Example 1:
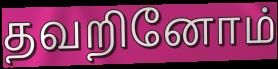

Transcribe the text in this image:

தவறினோம்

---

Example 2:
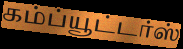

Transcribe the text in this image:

கம்ப்யூட்டர்ஸ்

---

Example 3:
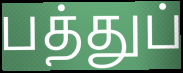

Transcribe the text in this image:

பத்துப்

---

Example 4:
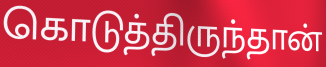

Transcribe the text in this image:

கொடுத்திருந்தான்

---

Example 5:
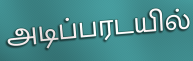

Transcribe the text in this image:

அடிப்பரடயில்